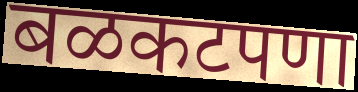
बळकटपणा